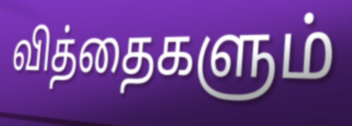
வித்தைகளும்